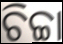
ଚିଚ୍ଚା